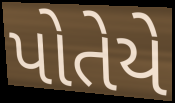
પોતેયે